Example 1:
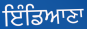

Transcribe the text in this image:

ਇੰਡਿਆਣਾ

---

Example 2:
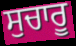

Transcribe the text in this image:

ਸੁਚਾਰੂ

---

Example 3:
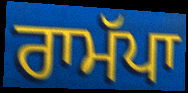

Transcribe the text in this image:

ਰਾਮੱਪਾ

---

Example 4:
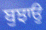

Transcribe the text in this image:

ਬੁਝਾਉ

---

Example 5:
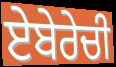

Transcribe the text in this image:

ਏਬੇਰੇਚੀ